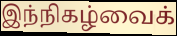
இந்நிகழ்வைக்